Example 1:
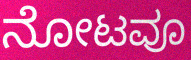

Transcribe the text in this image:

ನೋಟವೂ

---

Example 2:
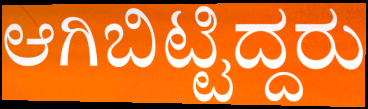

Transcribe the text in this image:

ಆಗಿಬಿಟ್ಟಿದ್ದರು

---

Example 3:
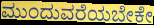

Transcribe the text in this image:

ಮುಂದುವರೆಯಬೇಕೇ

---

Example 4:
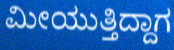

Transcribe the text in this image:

ಮೀಯುತ್ತಿದ್ದಾಗ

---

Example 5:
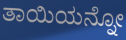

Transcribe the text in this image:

ತಾಯಿಯನ್ನೋ